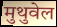
मुथुवेल